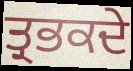
ਤ੍ਰਭਕਦੇ